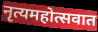
नृत्यमहोत्सवात